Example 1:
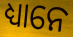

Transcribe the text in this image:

ଧ୍ୟାନେ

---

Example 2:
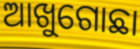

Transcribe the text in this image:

ଆଖୁଗୋଛା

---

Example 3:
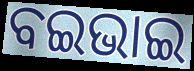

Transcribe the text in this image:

ବଇଭାଇ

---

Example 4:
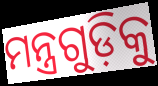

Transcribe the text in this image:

ମନ୍ତ୍ରଗୁଡ଼ିକୁ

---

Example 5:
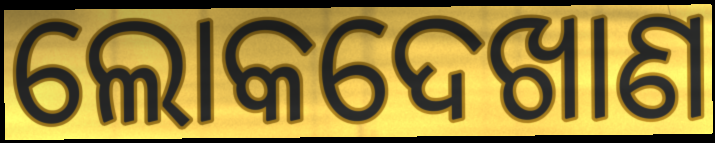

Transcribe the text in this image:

ଲୋକଦେଖାଣ